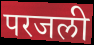
परजली